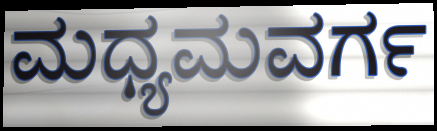
ಮಧ್ಯಮವರ್ಗ